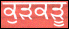
ਕੁੜਕੜੂ